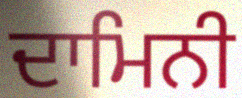
ਦਾਮਿਨੀ